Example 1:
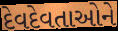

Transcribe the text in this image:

દેવદેવતાઓને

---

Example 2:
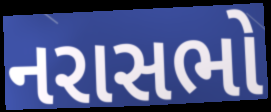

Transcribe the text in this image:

નરાસભો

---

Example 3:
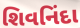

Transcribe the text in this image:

શિવનિંદા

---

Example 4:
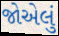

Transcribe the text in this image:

જોએલું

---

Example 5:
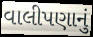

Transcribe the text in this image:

વાલીપણાનું